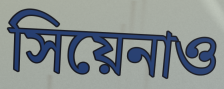
সিয়েনাও